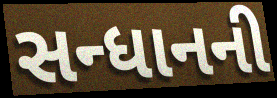
સન્ધાનની